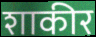
शाकीर